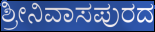
ಶ್ರೀನಿವಾಸಪುರದ